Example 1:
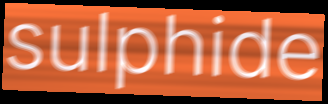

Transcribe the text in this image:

sulphide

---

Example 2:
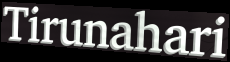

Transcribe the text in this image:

Tirunahari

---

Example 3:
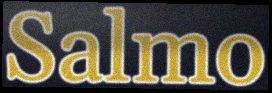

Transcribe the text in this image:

Salmo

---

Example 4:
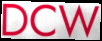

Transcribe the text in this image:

DCW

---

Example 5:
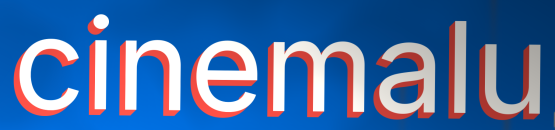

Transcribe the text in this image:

cinemalu